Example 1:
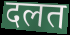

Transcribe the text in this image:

दलत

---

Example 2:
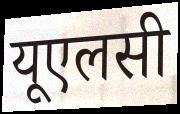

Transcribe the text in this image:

यूएलसी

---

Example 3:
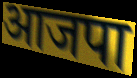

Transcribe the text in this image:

आजपा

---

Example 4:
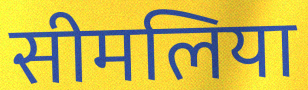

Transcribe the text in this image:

सीमलिया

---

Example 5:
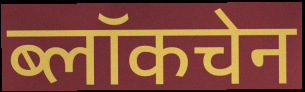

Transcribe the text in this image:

ब्लॉकचेन